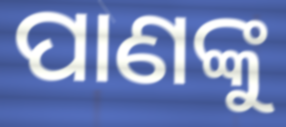
ପାଣଙ୍କୁ